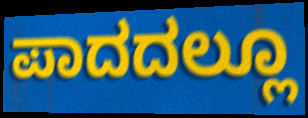
ಪಾದದಲ್ಲೂ